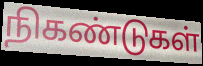
நிகண்டுகள்